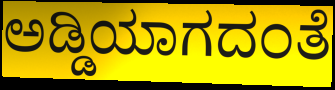
ಅಡ್ಡಿಯಾಗದಂತೆ